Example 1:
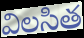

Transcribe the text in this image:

విలసిత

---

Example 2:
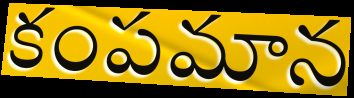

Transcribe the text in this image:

కంపమాన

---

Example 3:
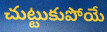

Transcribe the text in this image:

చుట్టుకుపోయే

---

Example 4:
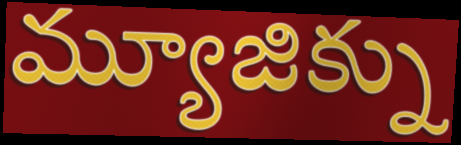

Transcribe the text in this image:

మ్యూజిక్ను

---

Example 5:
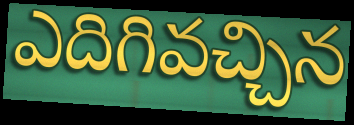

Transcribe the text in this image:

ఎదిగివచ్చిన